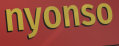
nyonso